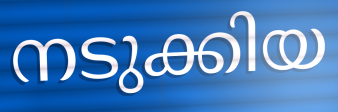
നടുക്കിയ